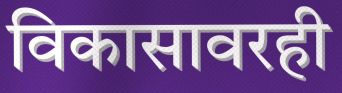
विकासावरही